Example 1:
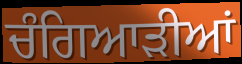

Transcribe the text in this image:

ਚੰਗਿਆੜੀਆਂ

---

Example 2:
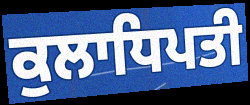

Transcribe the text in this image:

ਕੁਲਾਧਿਪਤੀ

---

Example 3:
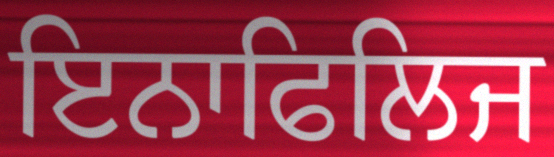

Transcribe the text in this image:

ਇਨਾਫਿਲਿਜ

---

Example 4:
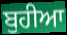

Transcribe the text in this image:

ਬੁਹੀਆ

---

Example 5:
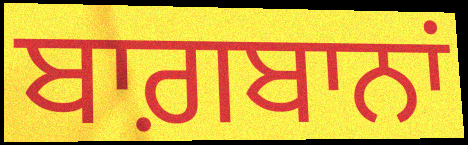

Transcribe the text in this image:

ਬਾਗ਼ਬਾਨਾਂ